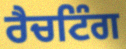
ਰੈਚਟਿੰਗ